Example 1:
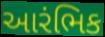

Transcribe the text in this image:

આરંભિક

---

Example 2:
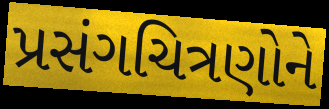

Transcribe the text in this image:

પ્રસંગચિત્રણોને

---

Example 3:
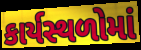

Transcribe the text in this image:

કાર્યસ્થળોમાં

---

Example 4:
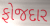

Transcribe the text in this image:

ફોજદાર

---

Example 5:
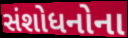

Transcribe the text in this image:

સંશોધનોના